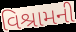
વિશ્રામની